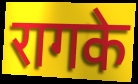
रागके